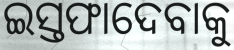
ଇସ୍ତଫାଦେବାକୁ